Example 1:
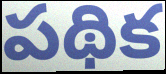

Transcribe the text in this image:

పథిక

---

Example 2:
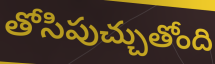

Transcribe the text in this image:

తోసిపుచ్చుతోంది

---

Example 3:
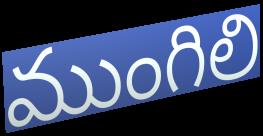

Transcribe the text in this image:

ముంగిలి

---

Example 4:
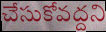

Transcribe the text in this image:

చేసుకోవద్దని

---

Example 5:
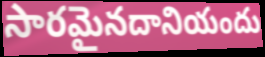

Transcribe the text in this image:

సారమైనదానియందు